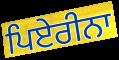
ਪਿਏਰੀਨਾ